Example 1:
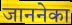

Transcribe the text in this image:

जाननेका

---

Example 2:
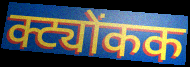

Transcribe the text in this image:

क्ट्योंकक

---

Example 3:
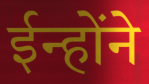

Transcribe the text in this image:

ईन्होंने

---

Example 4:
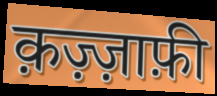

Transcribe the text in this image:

क़ज़्ज़ाफ़ी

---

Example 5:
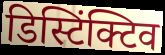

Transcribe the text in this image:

डिस्टिंक्टिव